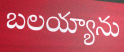
బలయ్యాను